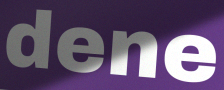
dene